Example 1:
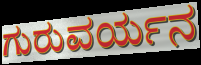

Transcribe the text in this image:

ಗುರುವರ್ಯನ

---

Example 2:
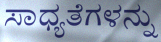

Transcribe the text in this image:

ಸಾಧ್ಯತೆಗಳನ್ನು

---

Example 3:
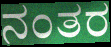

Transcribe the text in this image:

ನಂತರ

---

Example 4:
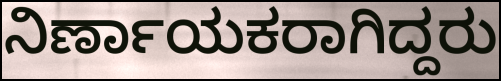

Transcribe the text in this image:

ನಿರ್ಣಾಯಕರಾಗಿದ್ದರು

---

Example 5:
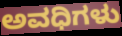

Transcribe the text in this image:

ಅವಧಿಗಳು